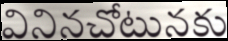
వినినచోటునకు